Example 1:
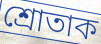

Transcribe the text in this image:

শ্ৰোতাক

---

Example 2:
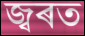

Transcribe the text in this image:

জ্বৰত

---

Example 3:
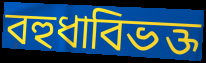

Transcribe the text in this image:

বহুধাবিভক্ত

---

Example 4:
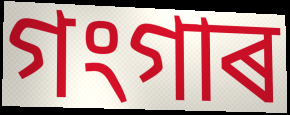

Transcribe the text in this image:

গংগাৰ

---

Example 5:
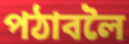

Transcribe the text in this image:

পঠাবলৈ